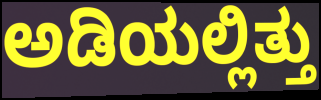
ಅಡಿಯಲ್ಲಿತ್ತು